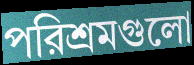
পরিশ্রমগুলো